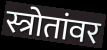
स्त्रोतांवर